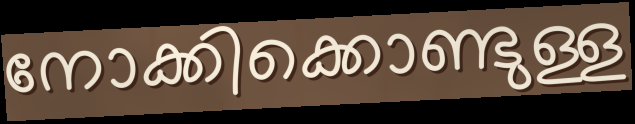
നോക്കിക്കൊണ്ടുള്ള